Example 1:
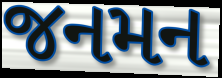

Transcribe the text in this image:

જનમન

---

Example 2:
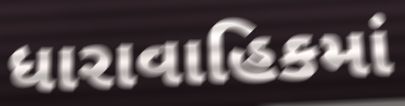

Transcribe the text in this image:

ધારાવાહિકમાં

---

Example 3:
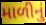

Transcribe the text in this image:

માળીનું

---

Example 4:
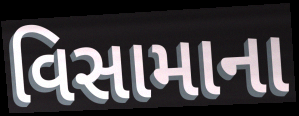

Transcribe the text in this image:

વિસામાના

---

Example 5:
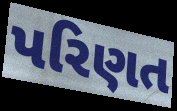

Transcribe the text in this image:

પરિણત